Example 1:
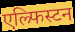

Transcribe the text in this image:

एल्फिस्टन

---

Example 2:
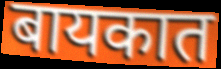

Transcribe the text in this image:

बायकात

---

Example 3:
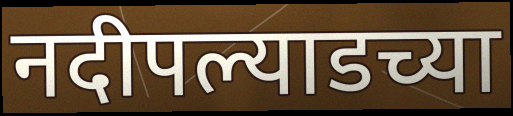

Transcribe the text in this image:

नदीपल्याडच्या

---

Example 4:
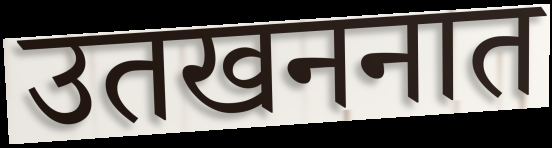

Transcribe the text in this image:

उतखननात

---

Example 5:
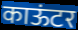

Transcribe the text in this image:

काऊंटर